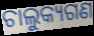
ଚାଲୁକ୍ୟଗଣ